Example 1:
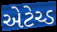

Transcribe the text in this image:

એટેચ્ડ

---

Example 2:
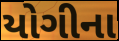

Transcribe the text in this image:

યોગીના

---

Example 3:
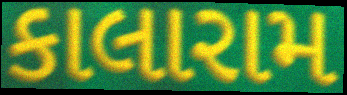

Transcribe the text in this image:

કાલારામ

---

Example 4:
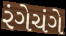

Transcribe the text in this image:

રંગેચંગે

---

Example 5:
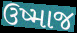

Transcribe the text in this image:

ઉષ્માજ